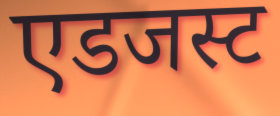
एडजस्ट